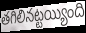
తగిలినట్టయ్యింది